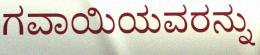
ಗವಾಯಿಯವರನ್ನು